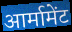
आर्मामेंट